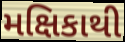
મક્ષિકાથી